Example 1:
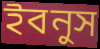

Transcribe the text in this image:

ইবনুস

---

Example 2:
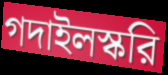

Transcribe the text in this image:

গদাইলস্করি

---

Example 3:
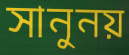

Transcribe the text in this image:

সানুনয়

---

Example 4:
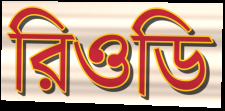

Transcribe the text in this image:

রিওডি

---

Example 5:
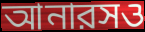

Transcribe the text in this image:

আনারসও